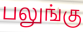
பலுங்கு